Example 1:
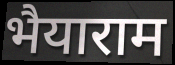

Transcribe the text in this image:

भैयाराम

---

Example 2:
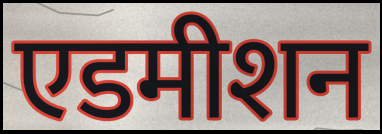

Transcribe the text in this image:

एडमीशन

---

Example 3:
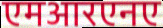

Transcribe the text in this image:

एमआरएनए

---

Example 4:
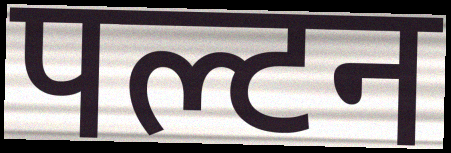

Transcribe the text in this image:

पल्टन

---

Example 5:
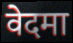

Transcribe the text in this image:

वेदमा